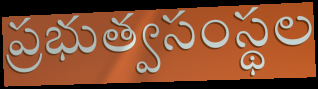
ప్రభుత్వసంస్థల